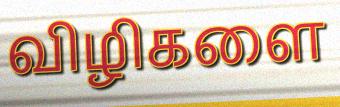
விழிகளை